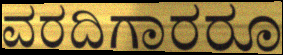
ವರದಿಗಾರರೂ